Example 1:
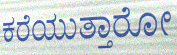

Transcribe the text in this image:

ಕರೆಯುತ್ತಾರೋ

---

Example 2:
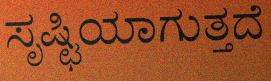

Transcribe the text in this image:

ಸೃಷ್ಟಿಯಾಗುತ್ತದೆ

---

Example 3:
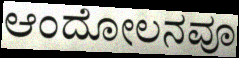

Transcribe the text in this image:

ಆಂದೋಲನವೂ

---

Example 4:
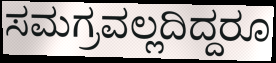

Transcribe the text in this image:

ಸಮಗ್ರವಲ್ಲದಿದ್ದರೂ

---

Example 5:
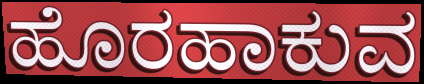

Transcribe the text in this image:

ಹೊರಹಾಕುವ